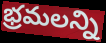
భ్రమలన్ని